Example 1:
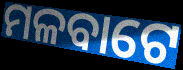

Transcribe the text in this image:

ମଳବାଟେ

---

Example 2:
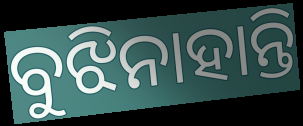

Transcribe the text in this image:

ବୁଝିନାହାନ୍ତି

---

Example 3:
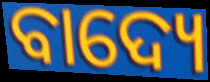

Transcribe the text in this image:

ବାଦ୍ୟେ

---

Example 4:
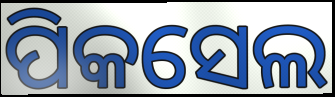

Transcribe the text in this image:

ପିକସେଲ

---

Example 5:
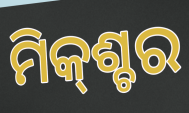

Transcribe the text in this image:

ମିକ୍‌ଶ୍ଚର